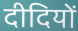
दीदियों